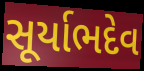
સૂર્યાભદેવ